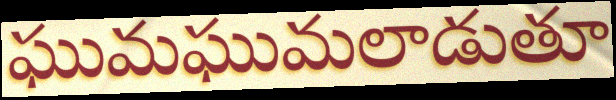
ఘుమఘుమలాడుతూ